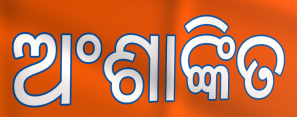
ଅଂଶାଙ୍କିତ